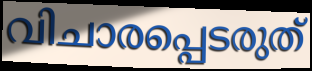
വിചാരപ്പെടരുത്